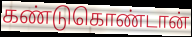
கண்டுகொண்டான்